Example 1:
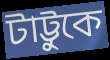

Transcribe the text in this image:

টাট্টুকে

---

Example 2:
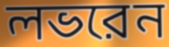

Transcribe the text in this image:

লভরেন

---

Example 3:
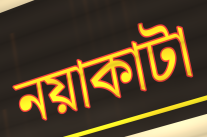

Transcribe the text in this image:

নয়াকাটা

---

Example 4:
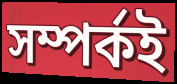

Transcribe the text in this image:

সম্পর্কই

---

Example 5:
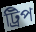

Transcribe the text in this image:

ট্রিপ